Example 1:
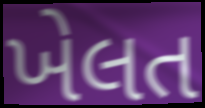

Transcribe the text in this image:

ખેલત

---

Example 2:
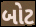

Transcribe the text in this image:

બોટ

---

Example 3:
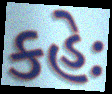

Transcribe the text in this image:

કહેઃ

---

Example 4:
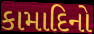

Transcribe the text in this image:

કામાદિનો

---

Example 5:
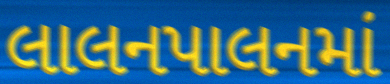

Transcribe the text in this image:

લાલનપાલનમાં